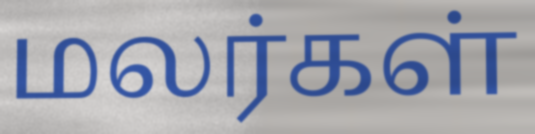
மலர்கள்